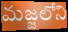
మజ్జలోని